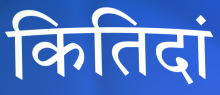
कितिदां